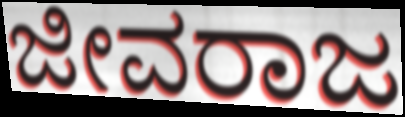
ಜೀವರಾಜ